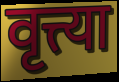
वृत्त्या